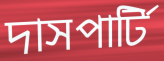
দাসপার্টি